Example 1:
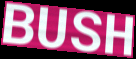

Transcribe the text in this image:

BUSH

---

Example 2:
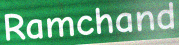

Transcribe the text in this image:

Ramchand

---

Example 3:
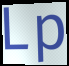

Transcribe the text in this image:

Lp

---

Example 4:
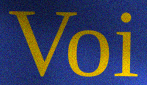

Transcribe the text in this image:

Voi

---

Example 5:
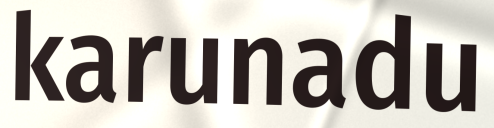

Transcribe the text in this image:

karunadu